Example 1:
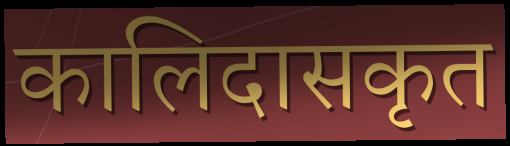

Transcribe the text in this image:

कालिदासकृत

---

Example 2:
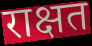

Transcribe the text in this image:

राक्षत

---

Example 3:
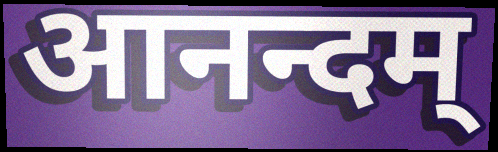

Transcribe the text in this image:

आनन्दम्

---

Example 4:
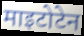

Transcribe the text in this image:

माइटोटेन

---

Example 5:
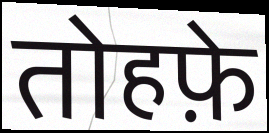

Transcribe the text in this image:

तोहफ़े